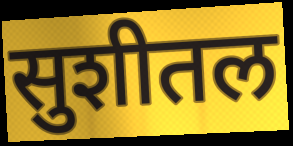
सुशीतल